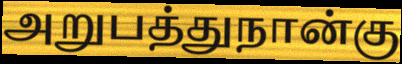
அறுபத்துநான்கு